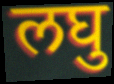
लघु